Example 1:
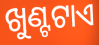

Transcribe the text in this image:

ଖୁଣ୍ଟଟାଏ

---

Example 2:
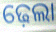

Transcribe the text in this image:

ଢ଼େଲା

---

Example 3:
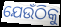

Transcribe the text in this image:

ଯେଉଁଠିକୁ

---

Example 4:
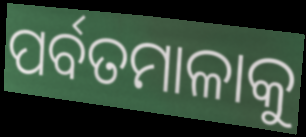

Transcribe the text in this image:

ପର୍ବତମାଳାକୁ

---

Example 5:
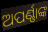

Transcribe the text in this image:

ଅପର୍ଣ୍ଣାଙ୍କ